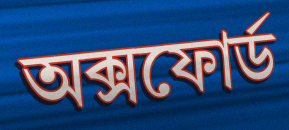
অক্সফোর্ড